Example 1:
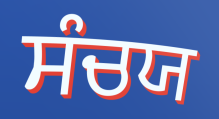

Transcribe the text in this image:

ਸੰਚਯ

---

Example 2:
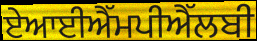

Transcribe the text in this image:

ਏਆਈਐੱਮਪੀਐੱਲਬੀ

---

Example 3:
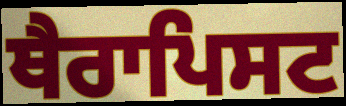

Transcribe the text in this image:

ਥੈਰਾਪਿਸਟ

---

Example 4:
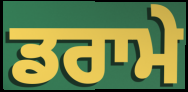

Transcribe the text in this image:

ਡਰਾਮੇ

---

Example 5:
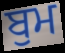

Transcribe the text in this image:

ਬੁਮ